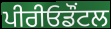
ਪੀਰੀਓਡੌਂਟਲ